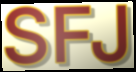
SFJ